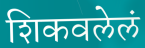
शिकवलेलं